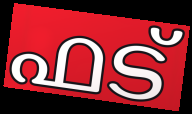
ഫട്